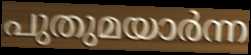
പുതുമയാർന്ന